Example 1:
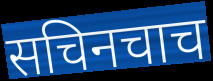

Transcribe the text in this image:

सचिनचाच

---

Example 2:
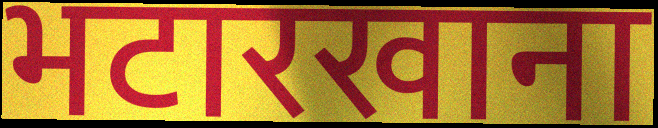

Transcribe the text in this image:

भटारखाना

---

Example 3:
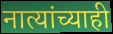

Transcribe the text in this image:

नात्यांच्याही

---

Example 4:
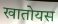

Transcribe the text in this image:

खातोयस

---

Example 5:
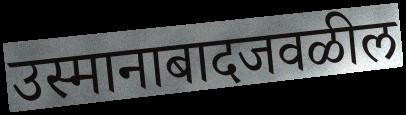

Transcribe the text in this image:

उस्मानाबादजवळील